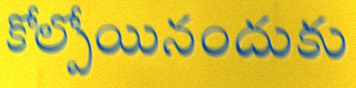
కోల్పోయినందుకు